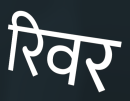
रिवर